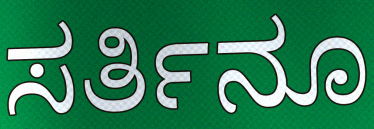
ಸರ್ತಿನೂ